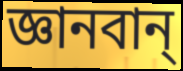
জ্ঞানবান্